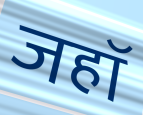
जहॉ